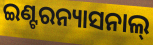
ଇଣ୍ଟରନ୍ୟାସନାଲ୍